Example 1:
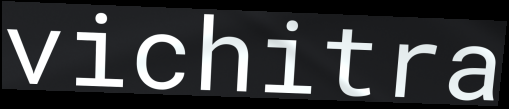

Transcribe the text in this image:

vichitra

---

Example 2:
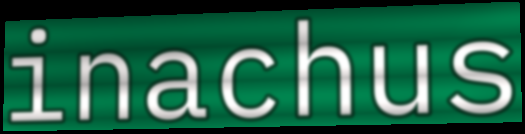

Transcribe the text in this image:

inachus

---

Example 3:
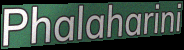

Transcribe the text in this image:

Phalaharini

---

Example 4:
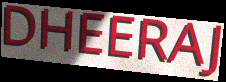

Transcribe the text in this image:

DHEERAJ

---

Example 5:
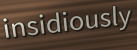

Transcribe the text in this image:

insidiously